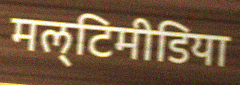
मल्टिमीडिया